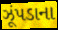
ઝૂંપડાના